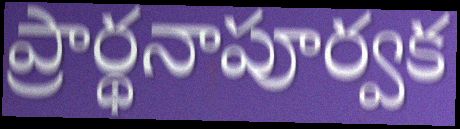
ప్రార్థనాపూర్వక